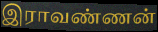
இராவண்ணன்